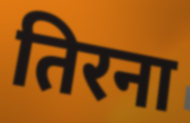
तिरना